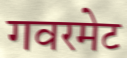
गवरमेट